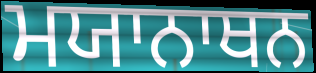
ਮਯਾਨਾਥਨ